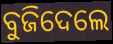
ବୁଜିଦେଲେ